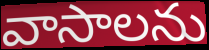
వాసాలను